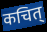
कचित्